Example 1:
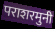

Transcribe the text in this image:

पराशरमुनी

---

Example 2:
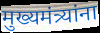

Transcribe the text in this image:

मुख्यमंत्र्यांना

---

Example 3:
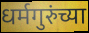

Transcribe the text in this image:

धर्मगुरुंच्या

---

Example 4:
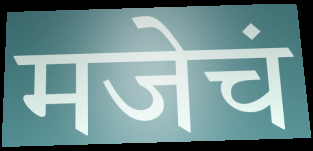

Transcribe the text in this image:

मजेचं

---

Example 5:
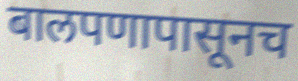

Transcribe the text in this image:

बालपणापासूनच